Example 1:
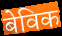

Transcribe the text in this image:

बेविक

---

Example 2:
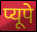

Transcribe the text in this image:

प्यूपे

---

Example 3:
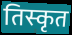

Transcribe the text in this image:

तिस्कृत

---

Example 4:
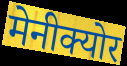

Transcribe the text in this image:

मेनीक्योर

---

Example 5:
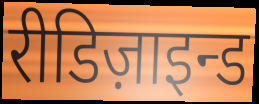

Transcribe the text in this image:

रीडिज़ाइन्ड